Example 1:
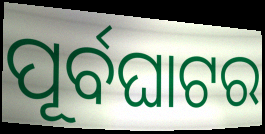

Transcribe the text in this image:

ପୂର୍ବଘାଟର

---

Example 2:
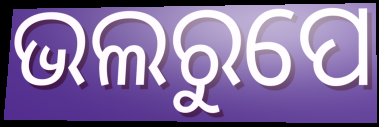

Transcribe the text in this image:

ଭଲରୁପେ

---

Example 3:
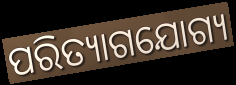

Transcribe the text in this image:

ପରିତ୍ୟାଗଯୋଗ୍ୟ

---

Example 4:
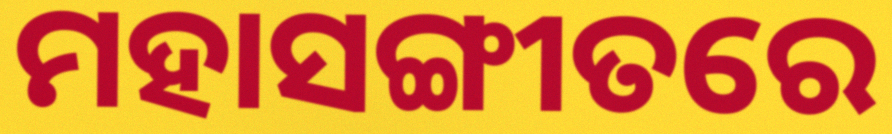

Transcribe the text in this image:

ମହାସଙ୍ଗୀତରେ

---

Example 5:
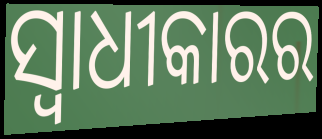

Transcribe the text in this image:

ସ୍ୱାଧୀକାରର